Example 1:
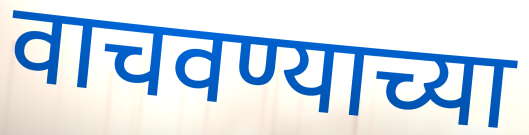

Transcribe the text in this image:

वाचवण्याच्या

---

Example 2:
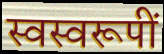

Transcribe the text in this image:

स्वस्वरूपीं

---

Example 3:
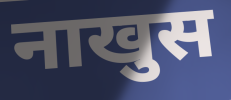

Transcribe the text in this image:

नाखुस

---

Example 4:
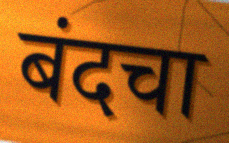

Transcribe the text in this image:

बंदचा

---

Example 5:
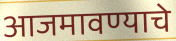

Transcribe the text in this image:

आजमावण्याचे